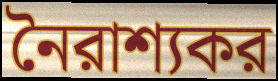
নৈরাশ্যকর